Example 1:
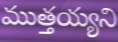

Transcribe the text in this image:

ముత్తయ్యని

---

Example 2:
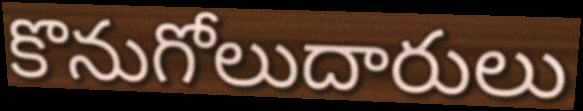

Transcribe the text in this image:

కొనుగోలుదారులు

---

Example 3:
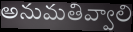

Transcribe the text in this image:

అనుమతివ్వాలి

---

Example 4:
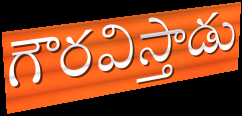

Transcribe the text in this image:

గౌరవిస్తాడు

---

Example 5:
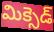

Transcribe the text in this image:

మిక్సెడ్